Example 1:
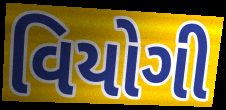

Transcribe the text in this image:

વિયોગી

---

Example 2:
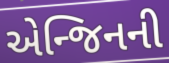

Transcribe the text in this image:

એન્જિનની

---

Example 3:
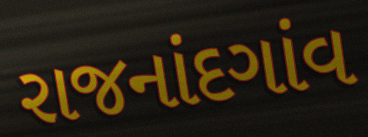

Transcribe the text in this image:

રાજનાંદગાંવ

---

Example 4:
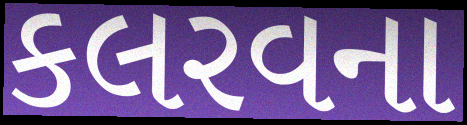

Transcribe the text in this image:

કલરવના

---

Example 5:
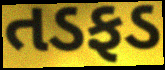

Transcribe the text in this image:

તડફડ